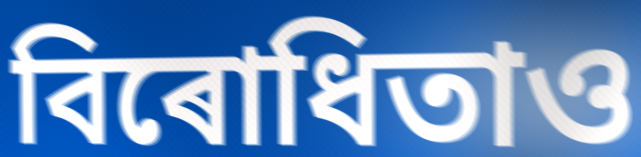
বিৰোধিতাও